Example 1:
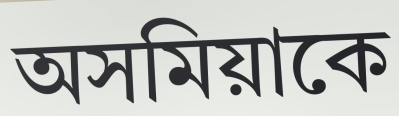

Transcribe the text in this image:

অসমিয়াকে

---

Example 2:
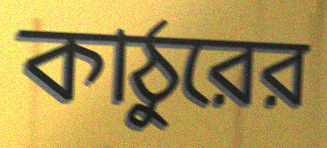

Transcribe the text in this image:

কাঠুরের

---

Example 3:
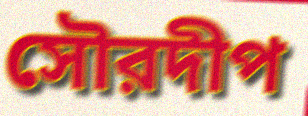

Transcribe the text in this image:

সৌরদীপ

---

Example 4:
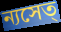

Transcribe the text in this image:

ন্যসেত্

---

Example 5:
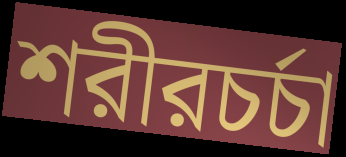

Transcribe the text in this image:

শরীরচর্চা